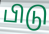
பிடு